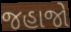
જહાજો